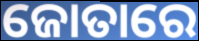
ଜୋତାରେ